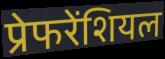
प्रेफरेंशियल